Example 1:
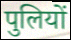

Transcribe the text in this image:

पुलियों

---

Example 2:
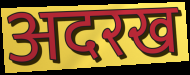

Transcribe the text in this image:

अदरख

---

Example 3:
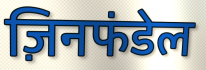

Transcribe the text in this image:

ज़िनफंडेल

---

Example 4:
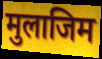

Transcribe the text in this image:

मुलाजिम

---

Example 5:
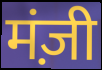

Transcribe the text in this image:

मंज़ी